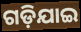
ଗଡ଼ିଯାଇ